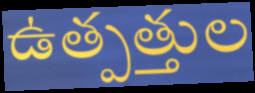
ఉత్పత్తుల